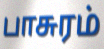
பாசுரம்